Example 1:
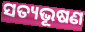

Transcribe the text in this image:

ସତ୍ୟଭୂଷଣ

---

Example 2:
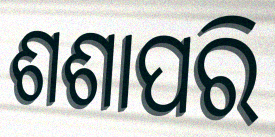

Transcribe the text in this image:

ଶଶାପରି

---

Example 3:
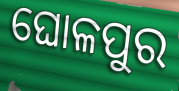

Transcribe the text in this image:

ଘୋଳପୁର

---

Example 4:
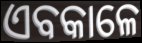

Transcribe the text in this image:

ଏବକାଳେ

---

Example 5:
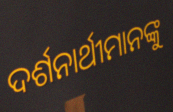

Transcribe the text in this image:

ଦର୍ଶନାର୍ଥୀମାନଙ୍କୁ